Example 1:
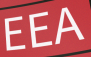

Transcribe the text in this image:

EEA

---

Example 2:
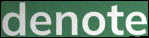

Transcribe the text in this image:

denote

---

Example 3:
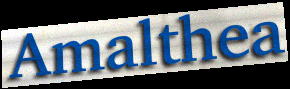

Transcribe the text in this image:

Amalthea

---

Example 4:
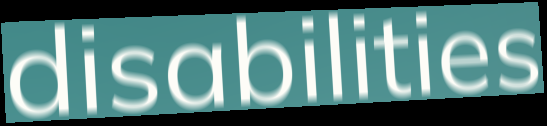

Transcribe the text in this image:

disabilities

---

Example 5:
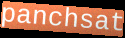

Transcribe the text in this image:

panchsat